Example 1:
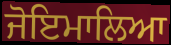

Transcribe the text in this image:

ਜੋਇਮਾਲਿਆ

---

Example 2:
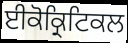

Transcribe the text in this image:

ਈਕੋਕ੍ਰਿਟਿਕਲ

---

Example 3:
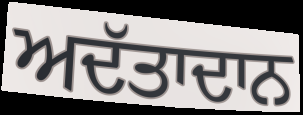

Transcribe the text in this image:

ਅਦੱਤਾਦਾਨ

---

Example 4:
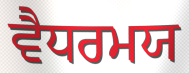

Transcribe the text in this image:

ਵੈਧਰਮਯ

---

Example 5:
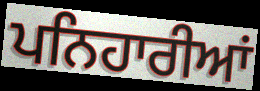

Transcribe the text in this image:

ਪਨਿਹਾਰੀਆਂ